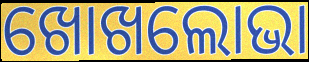
ଖୋଖଲୋଭା